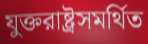
যুক্তরাষ্ট্রসমর্থিত